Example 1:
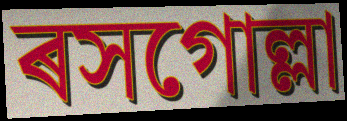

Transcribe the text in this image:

ৰসগোল্লা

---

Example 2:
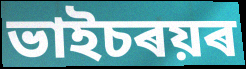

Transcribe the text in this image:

ভাইচৰয়ৰ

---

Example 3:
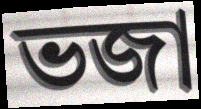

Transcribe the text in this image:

ভজা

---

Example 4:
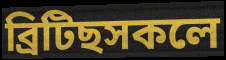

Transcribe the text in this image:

ব্ৰিটিছসকলে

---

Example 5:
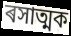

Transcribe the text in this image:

ৰসাত্মক